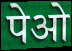
पेओ